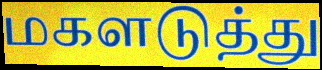
மகளடுத்து